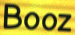
Booz